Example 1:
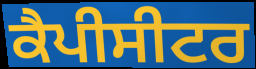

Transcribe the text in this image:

ਕੈਪੀਸੀਟਰ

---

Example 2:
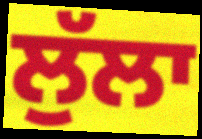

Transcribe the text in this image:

ਲੁੱਲਾ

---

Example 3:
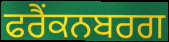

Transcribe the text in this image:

ਫਰੈਂਕਨਬਰਗ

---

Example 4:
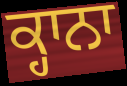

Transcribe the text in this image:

ਕ੍ਹਾਨਾ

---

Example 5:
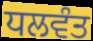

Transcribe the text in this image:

ਧਲਵੰਤ